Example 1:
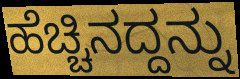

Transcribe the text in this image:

ಹೆಚ್ಚಿನದ್ದನ್ನು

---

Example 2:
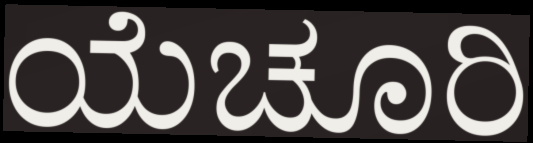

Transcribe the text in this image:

ಯೆಚೂರಿ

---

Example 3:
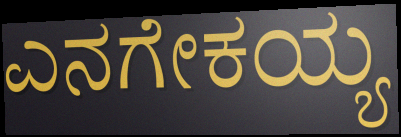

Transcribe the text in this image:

ಎನಗೇಕಯ್ಯ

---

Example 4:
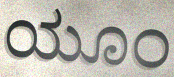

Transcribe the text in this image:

ಯೂಂ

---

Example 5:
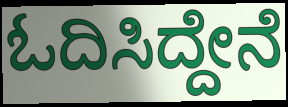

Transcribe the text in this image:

ಓದಿಸಿದ್ದೇನೆ